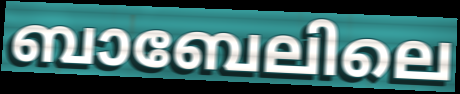
ബാബേലിലെ